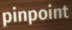
pinpoint